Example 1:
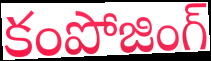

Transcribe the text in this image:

కంపోజింగ్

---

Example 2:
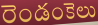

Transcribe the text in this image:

రెండంకెలు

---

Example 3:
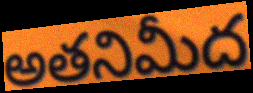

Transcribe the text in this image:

అతనిమీద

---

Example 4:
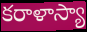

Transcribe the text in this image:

కరాళాస్యా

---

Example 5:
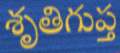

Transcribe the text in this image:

శృతిగుప్త